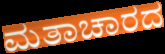
ಮತಾಚಾರದ